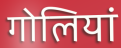
गोलियां